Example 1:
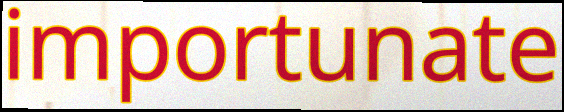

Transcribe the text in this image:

importunate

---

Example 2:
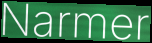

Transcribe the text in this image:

Narmer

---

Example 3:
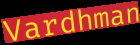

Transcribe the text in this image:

Vardhman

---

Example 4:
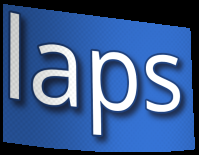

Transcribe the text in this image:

laps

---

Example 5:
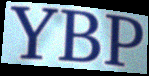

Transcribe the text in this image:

YBP